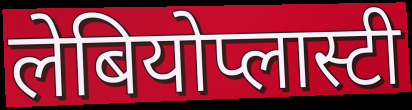
लेबियोप्लास्टी